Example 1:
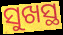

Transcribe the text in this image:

ସୁଖସ୍ଥ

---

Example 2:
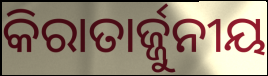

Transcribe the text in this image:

କିରାତାର୍ଜ୍ଜୁନୀୟ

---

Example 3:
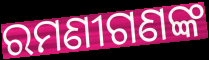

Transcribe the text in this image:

ରମଣୀଗଣଙ୍କ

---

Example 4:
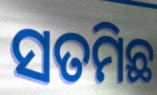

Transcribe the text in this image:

ସତମିଛ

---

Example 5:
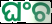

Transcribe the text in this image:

ଘଂଚ